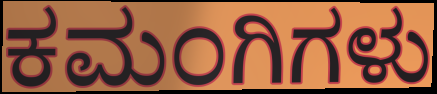
ಕಮಂಗಿಗಳು